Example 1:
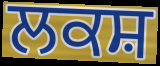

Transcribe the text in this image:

ਲਕਸ਼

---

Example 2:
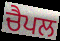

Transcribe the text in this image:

ਚੈਪਲ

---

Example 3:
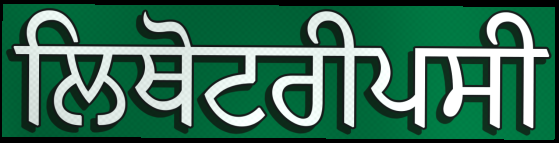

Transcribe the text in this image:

ਲਿਥੋਟਰੀਪਸੀ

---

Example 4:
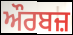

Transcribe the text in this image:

ਔਰਬਜ਼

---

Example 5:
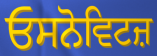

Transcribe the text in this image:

ਓਸਨੋਵਿਟਜ਼